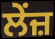
ਲੇਂਜ਼